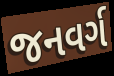
જનવર્ગ